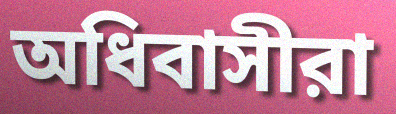
অধিবাসীরা